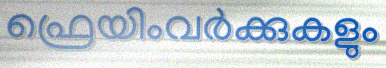
ഫ്രെയിംവർക്കുകളും